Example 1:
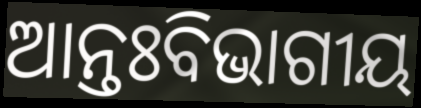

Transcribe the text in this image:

ଆନ୍ତଃବିଭାଗୀୟ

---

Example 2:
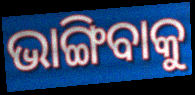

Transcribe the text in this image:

ଭାଙ୍ଗିବାକୁ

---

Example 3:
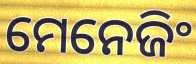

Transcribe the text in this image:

ମେନେଜିଂ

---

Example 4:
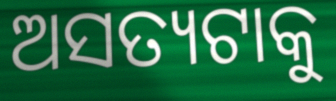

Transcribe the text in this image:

ଅସତ୍ୟଟାକୁ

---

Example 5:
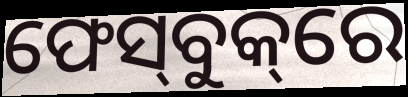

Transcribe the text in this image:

ଫେସ୍‌ବୁକ୍‌ରେ